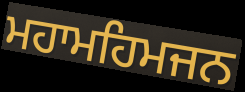
ਮਹਾਮਹਿਮਜਨ